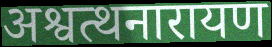
अश्वत्थनारायण